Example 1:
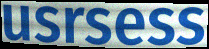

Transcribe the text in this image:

usrsess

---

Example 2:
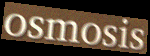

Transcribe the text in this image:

osmosis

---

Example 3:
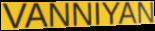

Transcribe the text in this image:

VANNIYAN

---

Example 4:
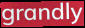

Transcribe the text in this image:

grandly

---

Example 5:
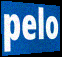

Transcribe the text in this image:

pelo